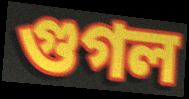
গুগল